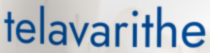
telavarithe